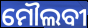
ମୌଲବୀ